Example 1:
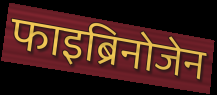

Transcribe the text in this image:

फाइब्रिनोजेन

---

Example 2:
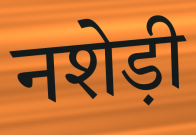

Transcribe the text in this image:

नशेड़ी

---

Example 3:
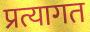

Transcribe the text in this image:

प्रत्यागत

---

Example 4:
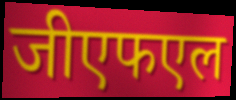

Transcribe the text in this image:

जीएफएल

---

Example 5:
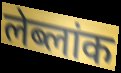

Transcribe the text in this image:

लेब्लांक